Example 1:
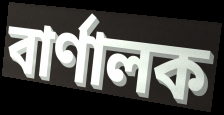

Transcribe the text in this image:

বাৰ্ণালক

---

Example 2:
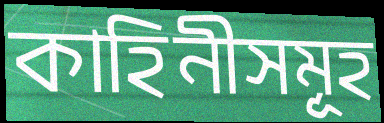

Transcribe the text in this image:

কাহিনীসমূহ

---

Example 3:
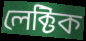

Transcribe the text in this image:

লেক্টিক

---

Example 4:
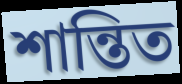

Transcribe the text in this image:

শান্তিত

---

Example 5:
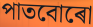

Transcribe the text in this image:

পাতবোৰো